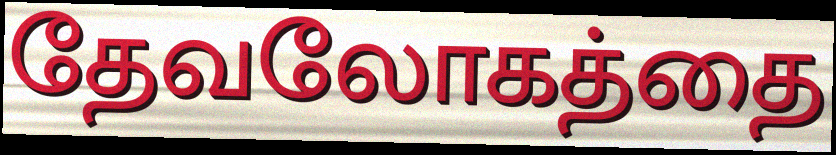
தேவலோகத்தை